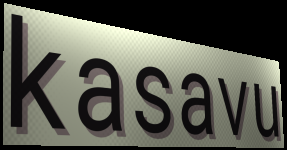
kasavu